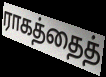
ராகத்தைத்